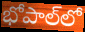
భోపాల్‌లో